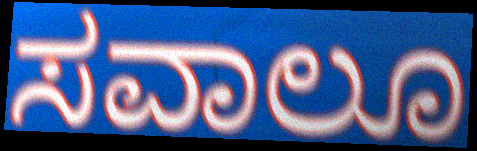
ಸವಾಲೂ